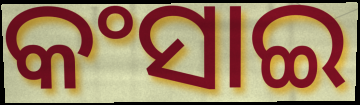
କଂସାଇ